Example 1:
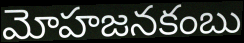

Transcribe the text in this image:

మోహజనకంబు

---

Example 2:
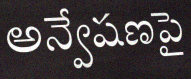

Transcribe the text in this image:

అన్వేషణపై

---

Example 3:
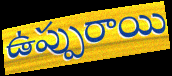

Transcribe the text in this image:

ఉప్పురాయి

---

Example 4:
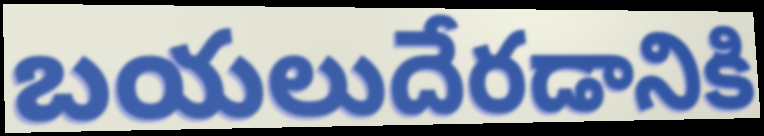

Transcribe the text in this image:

బయలుదేరడానికి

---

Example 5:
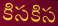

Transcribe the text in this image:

కిసకిస